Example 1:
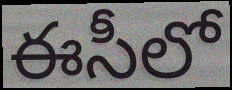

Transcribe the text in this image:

ఈసీలో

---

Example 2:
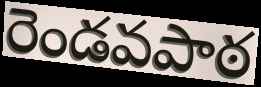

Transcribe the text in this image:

రెండవపాఠ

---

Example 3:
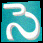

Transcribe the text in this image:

సె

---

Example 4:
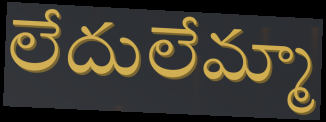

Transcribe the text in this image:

లేదులేమ్మా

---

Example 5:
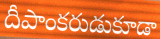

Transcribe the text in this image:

దీపాంకరుడుకూడా